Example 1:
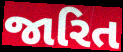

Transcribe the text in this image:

જારિત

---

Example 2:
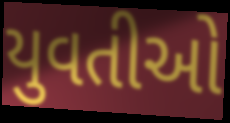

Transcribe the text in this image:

યુવતીઓ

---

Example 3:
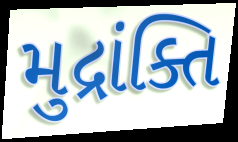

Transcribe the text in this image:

મુદ્રાંક્તિ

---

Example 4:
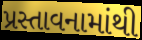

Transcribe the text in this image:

પ્રસ્તાવનામાંથી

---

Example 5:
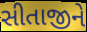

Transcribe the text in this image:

સીતાજીને